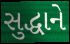
સુદ્ધાને